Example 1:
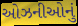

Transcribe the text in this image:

ઓઝનીઓનું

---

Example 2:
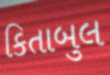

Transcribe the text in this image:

કિતાબુલ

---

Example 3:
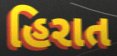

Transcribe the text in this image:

હિરાત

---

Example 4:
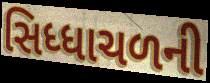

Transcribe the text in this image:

સિધ્ધાચળની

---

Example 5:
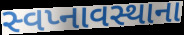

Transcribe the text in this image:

સ્વપ્નાવસ્થાના